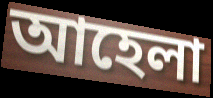
আহেলা